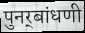
पुनर्बांधणी